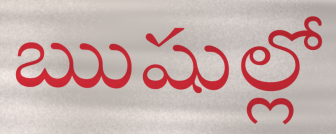
ఋషుల్లో